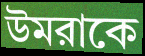
উমরাকে